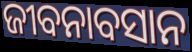
ଜୀବନାବସାନ